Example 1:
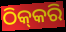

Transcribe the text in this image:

ଠିକ୍‍କରି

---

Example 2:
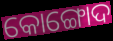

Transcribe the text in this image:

କୋଙ୍ଗୋଦ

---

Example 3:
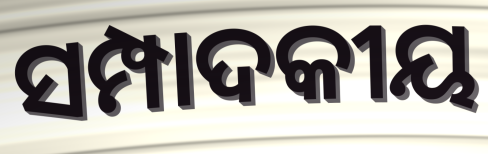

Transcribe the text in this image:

ସମ୍ପାଦକୀୟ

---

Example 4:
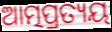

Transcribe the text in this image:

ଆତ୍ମପ୍ରତ୍ୟୟ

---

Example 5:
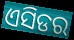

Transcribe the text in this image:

ଏସିଡର